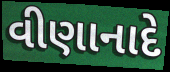
વીણાનાદે